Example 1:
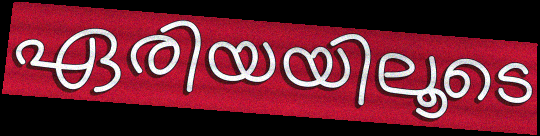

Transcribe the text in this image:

ഏരിയയിലൂടെ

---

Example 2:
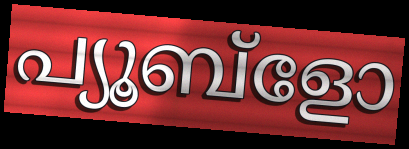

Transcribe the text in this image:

പ്യൂബ്ളോ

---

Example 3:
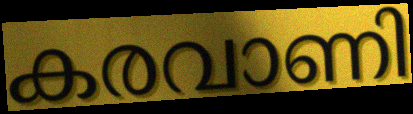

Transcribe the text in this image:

കരവാണി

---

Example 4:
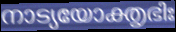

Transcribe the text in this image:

നാട്യയോക്തൃഭിഃ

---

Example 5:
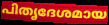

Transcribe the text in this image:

പിതൃദേശമായ